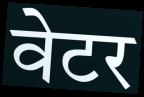
वेटर